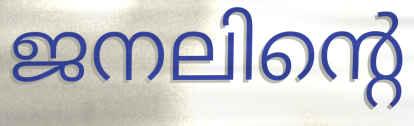
ജനലിന്റെ